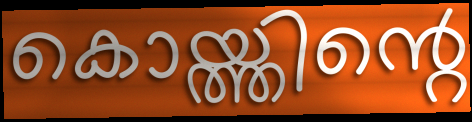
കൊയ്ത്തിന്റെ